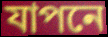
যাপনে